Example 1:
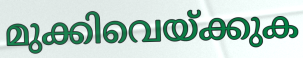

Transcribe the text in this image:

മുക്കിവെയ്ക്കുക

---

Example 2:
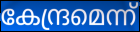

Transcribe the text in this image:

കേന്ദ്രമെന്ന്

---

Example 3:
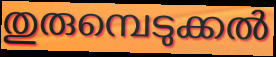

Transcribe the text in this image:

തുരുമ്പെടുക്കൽ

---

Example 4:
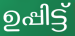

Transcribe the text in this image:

ഉപ്പിട്ട്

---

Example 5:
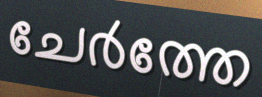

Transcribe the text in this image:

ചേർത്തേ